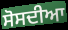
ਸੋਸਦੀਆ